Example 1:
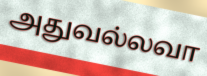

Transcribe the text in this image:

அதுவல்லவா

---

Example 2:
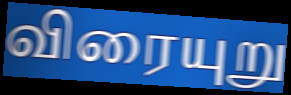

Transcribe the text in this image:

விரையுறு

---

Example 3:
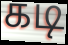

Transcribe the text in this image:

கடி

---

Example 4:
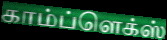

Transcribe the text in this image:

காம்ப்ளெக்ஸ்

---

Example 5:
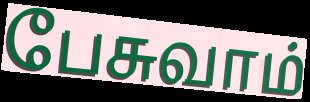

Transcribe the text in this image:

பேசுவாம்